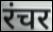
रंचर